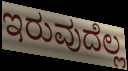
ಇರುವುದೆಲ್ಲ